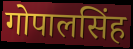
गोपालसिंह